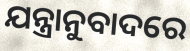
ଯନ୍ତ୍ରାନୁବାଦରେ